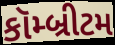
કૉમ્બ્રીટમ